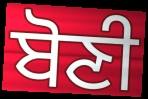
ਬੋਣੀ